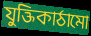
যুক্তিকাঠামো